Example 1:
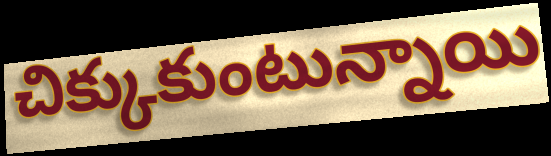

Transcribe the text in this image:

చిక్కుకుంటున్నాయి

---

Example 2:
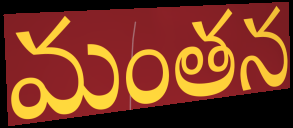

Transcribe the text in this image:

మంతన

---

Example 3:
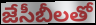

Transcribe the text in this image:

జేసీబీలతో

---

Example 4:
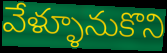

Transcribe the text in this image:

వేళ్ళూనుకొని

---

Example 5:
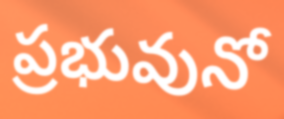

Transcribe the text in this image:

ప్రభువునో